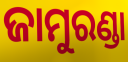
ଜାମୁରଣ୍ଡା